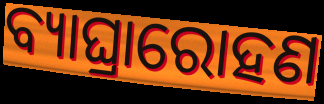
ବ୍ୟାଘ୍ରାରୋହଣ